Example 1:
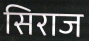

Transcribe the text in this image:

सिराज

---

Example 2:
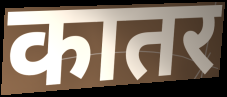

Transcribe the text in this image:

कातर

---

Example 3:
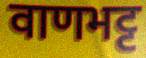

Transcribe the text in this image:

वाणभट्ट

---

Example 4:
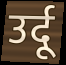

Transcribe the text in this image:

उर्दू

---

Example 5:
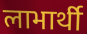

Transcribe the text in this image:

लाभार्थी